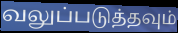
வலுப்படுத்தவும்